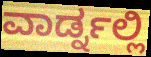
ವಾರ್ಡ್ನಲ್ಲಿ